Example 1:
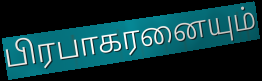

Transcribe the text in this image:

பிரபாகரனையும்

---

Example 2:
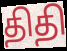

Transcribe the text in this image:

திதி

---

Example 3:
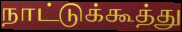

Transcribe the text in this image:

நாட்டுக்கூத்து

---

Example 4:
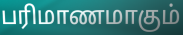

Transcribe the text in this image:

பரிமாணமாகும்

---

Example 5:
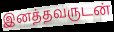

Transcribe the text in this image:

இனத்தவருடன்